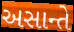
અસાન્તે